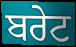
ਬਰੇਟ